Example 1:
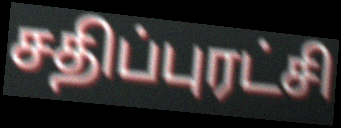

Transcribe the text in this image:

சதிப்புரட்சி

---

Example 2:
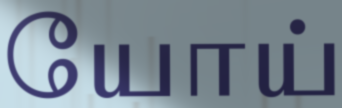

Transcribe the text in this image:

யோய்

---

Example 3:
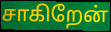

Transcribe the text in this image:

சாகிறேன்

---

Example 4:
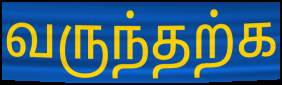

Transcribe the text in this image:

வருந்தற்க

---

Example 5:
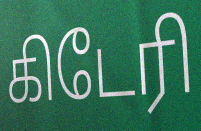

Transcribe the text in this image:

கிடேரி